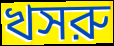
খসরু